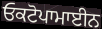
ਓਕਟੋਪਾਮਾਈਨ